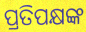
ପ୍ରତିପକ୍ଷଙ୍କ